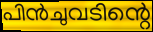
പിൻചുവടിന്റെ